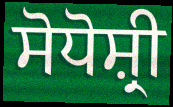
ਸੋਧੋਸ਼੍ਰੀ